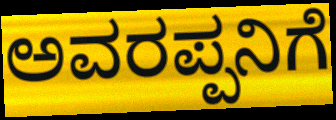
ಅವರಪ್ಪನಿಗೆ